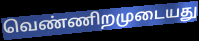
வெண்ணிறமுடையது